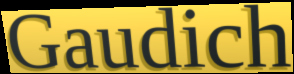
Gaudich